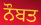
ਨੌਬਤ